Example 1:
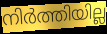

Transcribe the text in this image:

നിർത്തിയില്ല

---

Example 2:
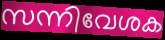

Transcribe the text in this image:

സന്നിവേശക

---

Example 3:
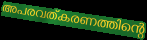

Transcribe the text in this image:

അപരവത്കരണത്തിന്റെ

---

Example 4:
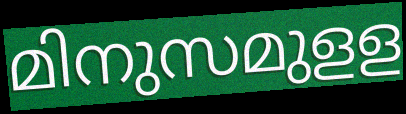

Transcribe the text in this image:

മിനുസമുളള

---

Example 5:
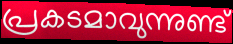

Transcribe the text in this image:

പ്രകടമാവുന്നുണ്ട്